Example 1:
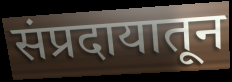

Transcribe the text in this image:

संप्रदायातून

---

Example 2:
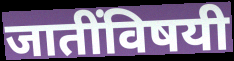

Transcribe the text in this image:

जातींविषयी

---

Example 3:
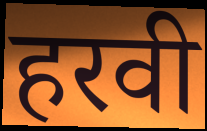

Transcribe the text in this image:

हरवी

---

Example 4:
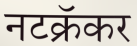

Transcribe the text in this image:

नटक्रॅकर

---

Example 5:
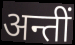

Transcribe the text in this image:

अन्तीं